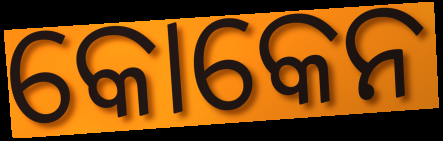
କୋକେନ